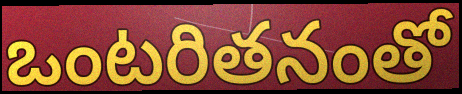
ఒంటరితనంతో